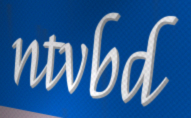
ntvbd